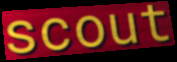
scout